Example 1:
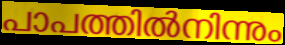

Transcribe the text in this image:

പാപത്തിൽനിന്നും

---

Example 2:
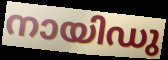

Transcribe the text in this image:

നായിഡു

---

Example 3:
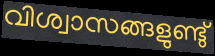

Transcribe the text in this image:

വിശ്വാസങ്ങളുണ്ടു്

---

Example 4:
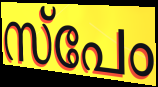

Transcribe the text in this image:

സ്പേം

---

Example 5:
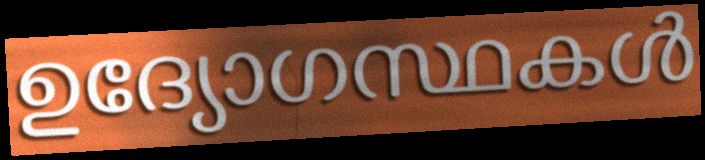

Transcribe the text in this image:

ഉദ്യോഗസ്ഥകൾ